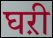
घऱी